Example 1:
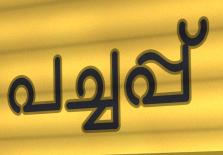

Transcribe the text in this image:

പച്ചപ്പ്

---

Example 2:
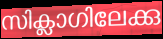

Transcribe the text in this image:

സിക്ലാഗിലേക്കു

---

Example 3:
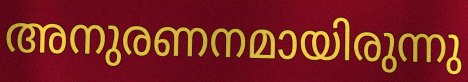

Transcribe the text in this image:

അനുരണനമായിരുന്നു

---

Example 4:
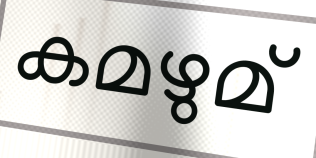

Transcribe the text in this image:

കമഴുമ്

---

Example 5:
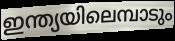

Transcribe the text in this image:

ഇന്ത്യയിലെമ്പാടും